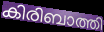
കിരിബാത്തി